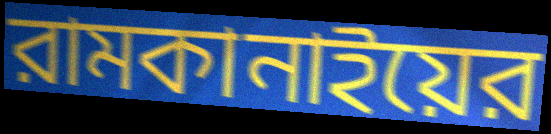
রামকানাইয়ের